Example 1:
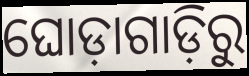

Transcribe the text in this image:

ଘୋଡ଼ାଗାଡ଼ିରୁ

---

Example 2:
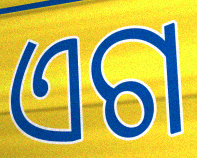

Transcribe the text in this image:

ଏଗ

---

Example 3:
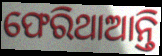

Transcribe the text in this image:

ଫେରିଥାଆନ୍ତି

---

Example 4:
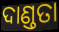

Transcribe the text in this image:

ଦାଣ୍ଡତା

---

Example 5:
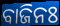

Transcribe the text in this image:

ବାଜିନଃ